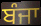
ਬੰਜਾ